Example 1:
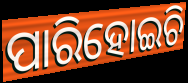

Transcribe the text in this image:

ପାରିହୋଇଚି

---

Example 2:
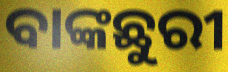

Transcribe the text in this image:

ବାଙ୍କଛୁରୀ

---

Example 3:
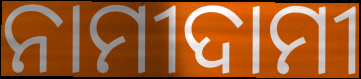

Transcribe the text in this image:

ନାମୀଦାମୀ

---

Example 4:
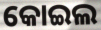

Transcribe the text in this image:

କୋଇଲ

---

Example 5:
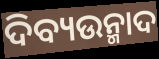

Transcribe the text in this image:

ଦିବ୍ୟଉନ୍ମାଦ